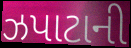
ઝપાટાની